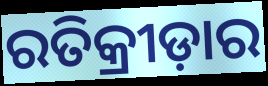
ରତିକ୍ରୀଡ଼ାର